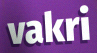
vakri